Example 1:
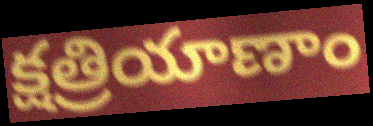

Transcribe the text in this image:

క్షత్రియాణాం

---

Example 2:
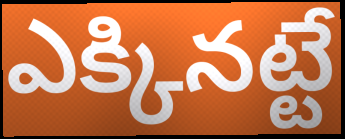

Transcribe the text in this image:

ఎక్కినట్టే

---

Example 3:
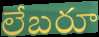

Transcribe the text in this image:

లేబరూ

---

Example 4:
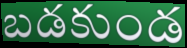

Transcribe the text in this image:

బడకుండ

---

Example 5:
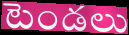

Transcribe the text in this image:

టెండలు